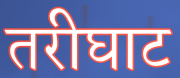
तरीघाट